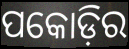
ପକୋଡ଼ିର